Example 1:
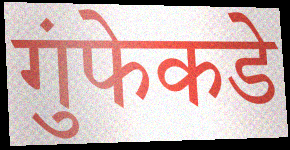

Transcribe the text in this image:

गुंफेकडे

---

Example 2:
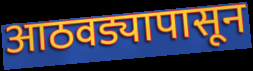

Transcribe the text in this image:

आठवड्यापासून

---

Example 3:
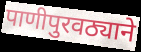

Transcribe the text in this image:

पाणीपुरवठ्याने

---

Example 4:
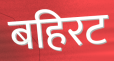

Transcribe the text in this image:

बहिरट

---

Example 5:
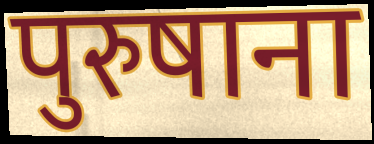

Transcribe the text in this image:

पुरुषाना